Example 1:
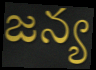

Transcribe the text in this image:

జన్య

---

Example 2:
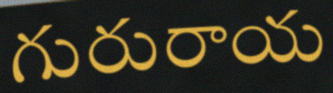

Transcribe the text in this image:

గురురాయ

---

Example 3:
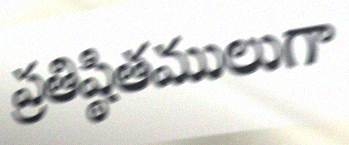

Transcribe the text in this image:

ప్రతిష్ఠితములుగా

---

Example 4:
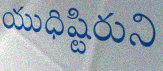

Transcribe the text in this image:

యుధిష్టిరుని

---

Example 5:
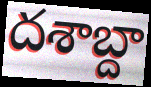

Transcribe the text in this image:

దశాబ్దా